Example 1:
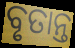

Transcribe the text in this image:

ବୃତାନ୍ତ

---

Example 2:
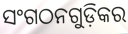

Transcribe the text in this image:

ସଂଗଠନଗୁଡ଼ିକର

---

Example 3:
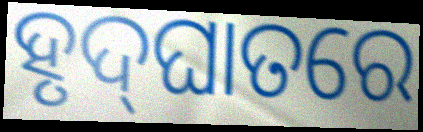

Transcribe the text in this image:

ହୃଦ୍‌ଘାତରେ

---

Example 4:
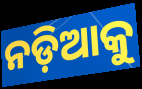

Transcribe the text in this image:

ନଡ଼ିଆକୁ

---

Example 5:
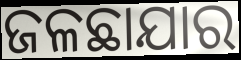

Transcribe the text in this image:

ଜଳଛାଯାର